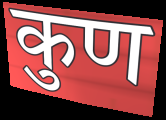
कुण